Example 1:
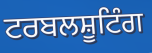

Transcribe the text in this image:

ਟਰਬਲਸ਼ੂਟਿੰਗ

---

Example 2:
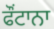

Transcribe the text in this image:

ਫੌਂਟਾਨਾ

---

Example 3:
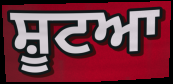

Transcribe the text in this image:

ਸ਼ੂਟਆ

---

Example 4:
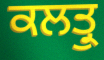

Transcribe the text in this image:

ਕਲਤ੍ਰੁ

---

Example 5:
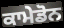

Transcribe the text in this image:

ਕਾਮੇਡੋਨ